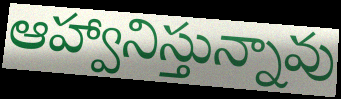
ఆహ్వానిస్తున్నావు